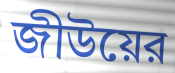
জীউয়ের